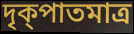
দৃক্পাতমাত্র